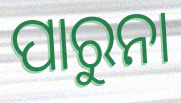
ପାରୁନା